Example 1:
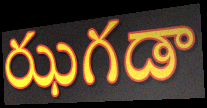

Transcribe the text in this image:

ఝగడా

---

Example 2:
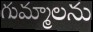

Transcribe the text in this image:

గుమ్మాలను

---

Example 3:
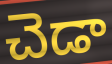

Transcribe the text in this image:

చెడా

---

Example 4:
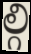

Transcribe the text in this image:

ల్గి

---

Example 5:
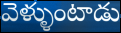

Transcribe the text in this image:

వెళ్ళుంటాడు